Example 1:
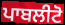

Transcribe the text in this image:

ਪਾਬਲੀਟੋ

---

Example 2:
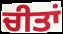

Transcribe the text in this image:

ਚੀਤਾਂ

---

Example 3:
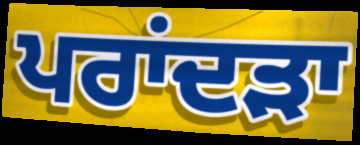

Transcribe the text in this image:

ਪਰਾਂਦੜਾ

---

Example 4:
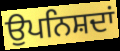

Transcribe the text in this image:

ਉਪਨਿਸ਼ਦਾਂ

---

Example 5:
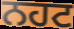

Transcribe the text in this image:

ਨਹਟ